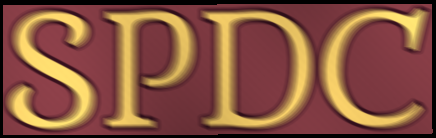
SPDC